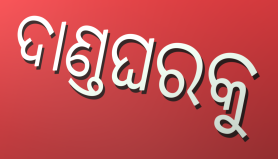
ଦାଣ୍ଡଘରକୁ